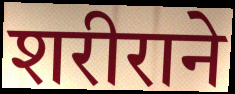
शरीराने